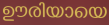
ഊരിയായെ